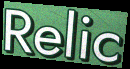
Relic